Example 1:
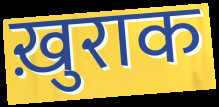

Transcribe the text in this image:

ख़ुराक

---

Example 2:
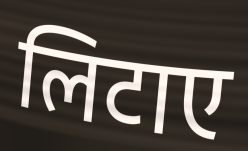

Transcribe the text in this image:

लिटाए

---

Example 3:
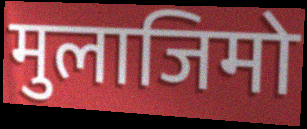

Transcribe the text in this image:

मुलाजिमो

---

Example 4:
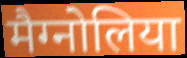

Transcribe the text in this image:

मैग्नोलिया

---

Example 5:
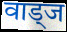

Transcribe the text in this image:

वाड्ज